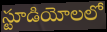
స్టూడియోలలో